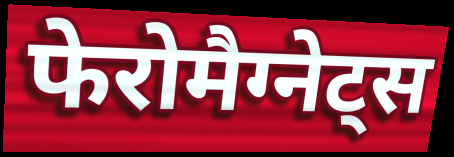
फेरोमैग्नेट्स